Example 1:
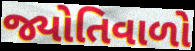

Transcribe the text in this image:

જ્યોતિવાળો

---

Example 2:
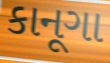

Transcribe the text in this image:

કાનૂગા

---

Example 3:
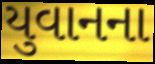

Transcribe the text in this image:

યુવાનના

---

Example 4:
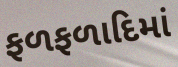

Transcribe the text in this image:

ફળફળાદિમાં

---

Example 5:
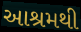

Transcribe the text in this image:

આશ્રમથી